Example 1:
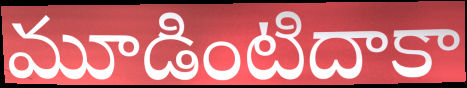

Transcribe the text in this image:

మూడింటిదాకా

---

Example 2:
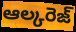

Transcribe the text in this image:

ఆల్కరెజ్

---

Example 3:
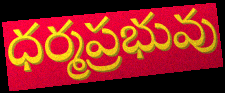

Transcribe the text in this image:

ధర్మప్రభువు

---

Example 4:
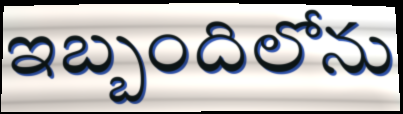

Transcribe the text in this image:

ఇబ్బందిలోను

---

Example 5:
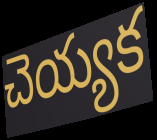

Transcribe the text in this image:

చెయ్యక